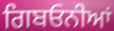
ਗਿਬਓਨੀਆਂ